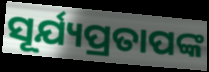
ସୂର୍ଯ୍ୟପ୍ରତାପଙ୍କ